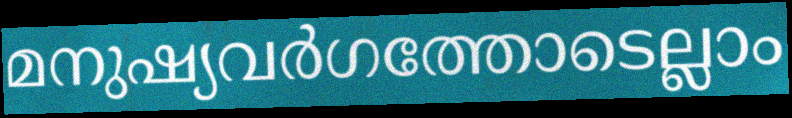
മനുഷ്യവർഗത്തോടെല്ലാം